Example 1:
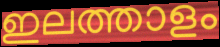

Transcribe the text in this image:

ഇലത്താളം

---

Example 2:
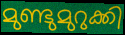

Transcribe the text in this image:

മുണ്ടുമുറുക്കി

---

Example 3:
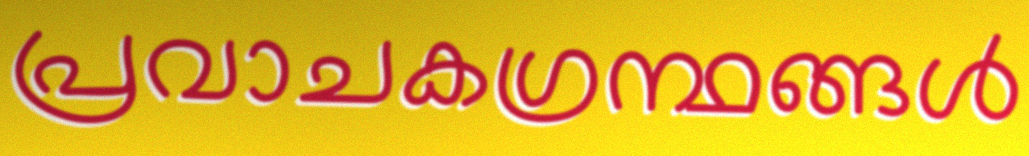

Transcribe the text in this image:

പ്രവാചകഗ്രന്ഥങ്ങൾ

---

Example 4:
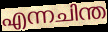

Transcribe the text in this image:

എന്നചിന്ത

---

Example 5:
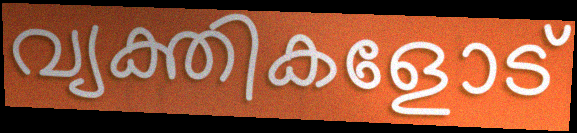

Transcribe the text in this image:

വ്യക്തികളോട്